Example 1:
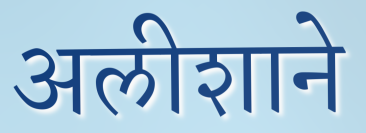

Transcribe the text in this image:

अलीशाने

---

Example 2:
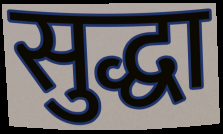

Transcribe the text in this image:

सुद्धा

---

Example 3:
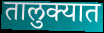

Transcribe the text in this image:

तालुक्यात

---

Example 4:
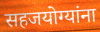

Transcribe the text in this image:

सहजयोग्यांना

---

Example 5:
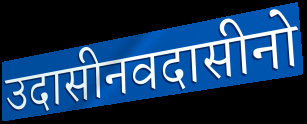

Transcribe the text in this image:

उदासीनवदासीनो